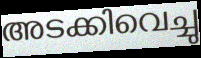
അടക്കിവെച്ചു